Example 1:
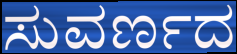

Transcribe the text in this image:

ಸುವರ್ಣದ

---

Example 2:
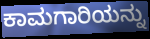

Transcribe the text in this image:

ಕಾಮಗಾರಿಯನ್ನು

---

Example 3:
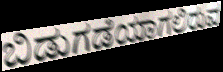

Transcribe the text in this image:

ಬಿಡುಗಡೆಯಾಗಲಿರುವ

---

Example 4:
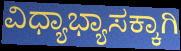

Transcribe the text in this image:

ವಿಧ್ಯಾಭ್ಯಾಸಕ್ಕಾಗಿ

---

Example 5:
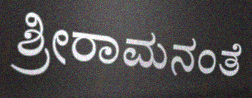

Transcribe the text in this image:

ಶ್ರೀರಾಮನಂತೆ